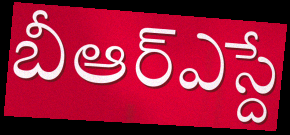
బీఆర్ఎస్దే